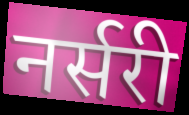
नर्सरी